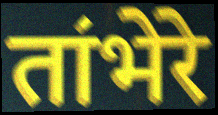
तांभेरे